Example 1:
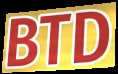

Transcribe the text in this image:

BTD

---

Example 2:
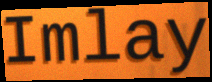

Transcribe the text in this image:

Imlay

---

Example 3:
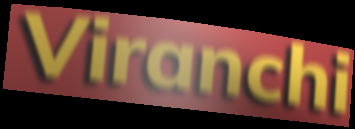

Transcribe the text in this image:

Viranchi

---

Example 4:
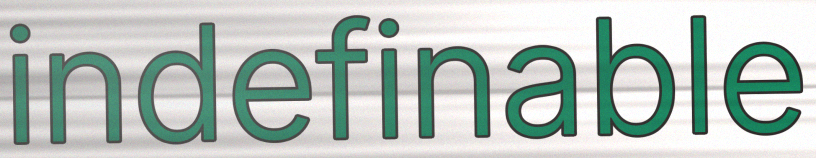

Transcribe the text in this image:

indefinable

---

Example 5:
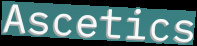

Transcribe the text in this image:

Ascetics